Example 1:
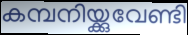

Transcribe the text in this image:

കമ്പനിയ്ക്കുവേണ്ടി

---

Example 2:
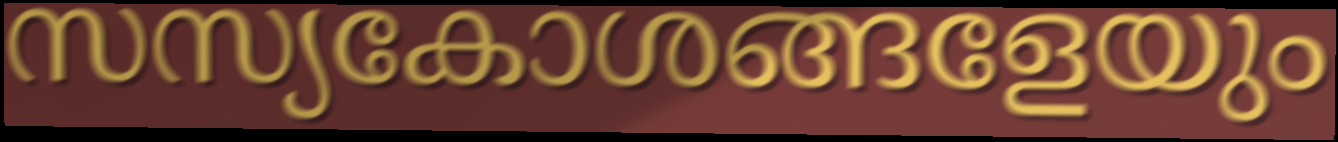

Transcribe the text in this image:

സസ്യകോശങ്ങളേയും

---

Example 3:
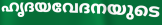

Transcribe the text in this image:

ഹൃദയവേദനയുടെ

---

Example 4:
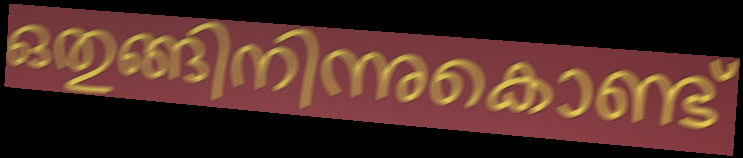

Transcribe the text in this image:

ഒതുങ്ങിനിന്നുകൊണ്ട്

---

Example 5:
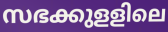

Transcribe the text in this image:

സഭക്കുളളിലെ